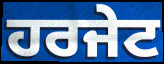
ਹਰਜੇਟ